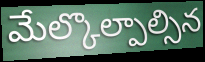
మేల్కొల్పాల్సిన